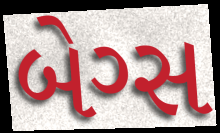
બેગ્સ